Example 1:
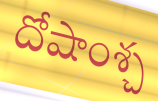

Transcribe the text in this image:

దోషాంశ్చ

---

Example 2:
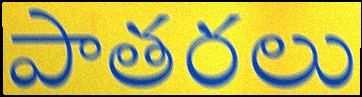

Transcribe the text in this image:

పాతరలు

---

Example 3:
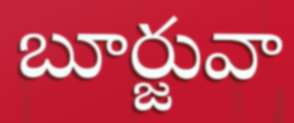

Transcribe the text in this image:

బూర్జువా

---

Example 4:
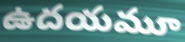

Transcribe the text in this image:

ఉదయమూ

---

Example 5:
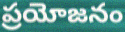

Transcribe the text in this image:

ప్రయోజనం